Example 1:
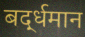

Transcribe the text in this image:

बर्द्धमान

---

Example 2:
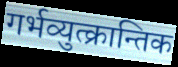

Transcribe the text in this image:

गर्भव्युत्क्रान्तिक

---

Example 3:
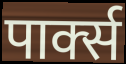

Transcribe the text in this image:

पार्क्‍स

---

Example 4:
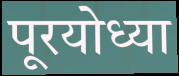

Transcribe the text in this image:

पूरयोध्या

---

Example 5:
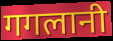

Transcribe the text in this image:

गगलानी